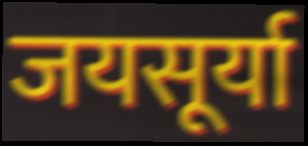
जयसूर्या